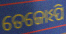
ତେଜୋଽପି